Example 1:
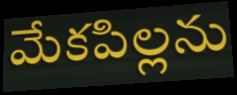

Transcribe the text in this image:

మేకపిల్లను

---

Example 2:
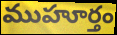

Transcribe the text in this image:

ముహూర్తం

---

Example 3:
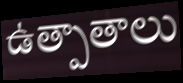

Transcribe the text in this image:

ఉత్పాతాలు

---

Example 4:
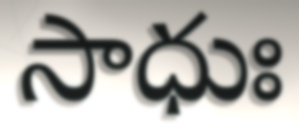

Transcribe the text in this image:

సాధుః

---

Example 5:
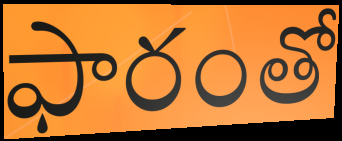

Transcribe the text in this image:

ఫారంతో